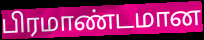
பிரமாண்டமான